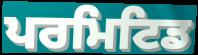
ਪਰਮਿਟਿਡ